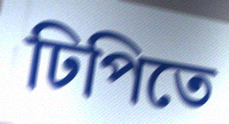
ঢিপিতে